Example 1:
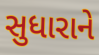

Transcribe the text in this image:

સુધારાને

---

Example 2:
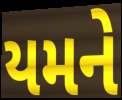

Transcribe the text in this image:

યમને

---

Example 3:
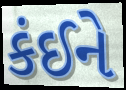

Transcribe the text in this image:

કંઈને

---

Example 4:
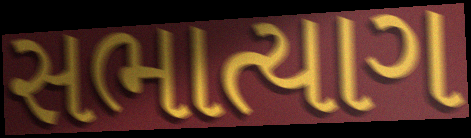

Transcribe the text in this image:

સભાત્યાગ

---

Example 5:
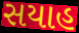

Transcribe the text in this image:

સયાહ